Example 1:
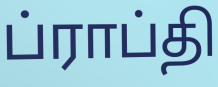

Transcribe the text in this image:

ப்ராப்தி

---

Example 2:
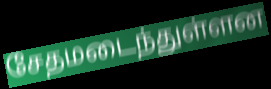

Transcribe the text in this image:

சேதமடைந்துள்ளன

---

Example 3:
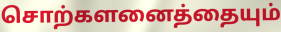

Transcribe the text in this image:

சொற்களனைத்தையும்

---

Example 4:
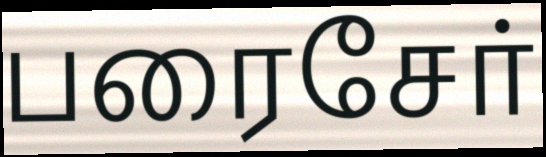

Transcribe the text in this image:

பரைசேர்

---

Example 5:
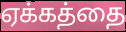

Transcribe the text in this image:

ஏக்கத்தை